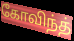
கோவிந்த்